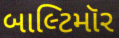
બાલ્ટિમૉર